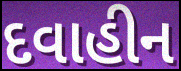
દવાહીન